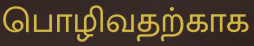
பொழிவதற்காக